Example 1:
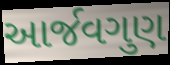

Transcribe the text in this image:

આર્જવગુણ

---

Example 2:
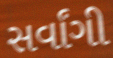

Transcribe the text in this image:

સર્વાંગી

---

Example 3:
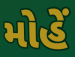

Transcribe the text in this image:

મોહેં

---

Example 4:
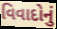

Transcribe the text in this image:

વિવાદોનું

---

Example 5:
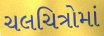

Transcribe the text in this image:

ચલચિત્રોમાં